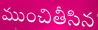
ముంచితీసిన